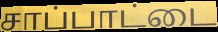
சாப்பாட்டை